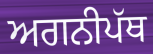
ਅਗਨੀਪੱਥ